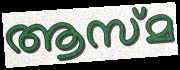
ആസ്മ